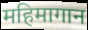
महिमागान